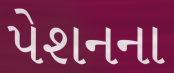
પેશનના